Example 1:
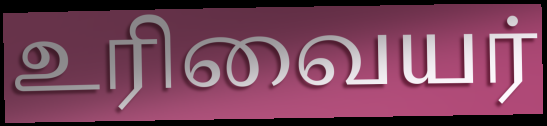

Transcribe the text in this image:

உரிவையர்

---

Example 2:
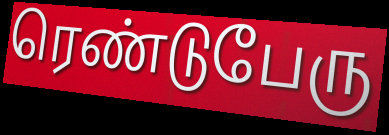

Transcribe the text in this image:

ரெண்டுபேரு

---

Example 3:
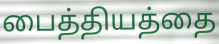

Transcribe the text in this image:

பைத்தியத்தை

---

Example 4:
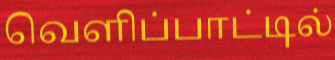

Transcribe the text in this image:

வெளிப்பாட்டில்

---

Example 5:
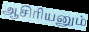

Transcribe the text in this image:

ஆசிரியனும்